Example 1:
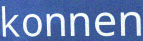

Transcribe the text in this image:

konnen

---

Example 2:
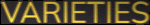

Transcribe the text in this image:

VARIETIES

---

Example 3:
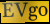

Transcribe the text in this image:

EVgo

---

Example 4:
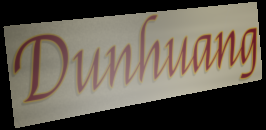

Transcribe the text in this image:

Dunhuang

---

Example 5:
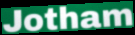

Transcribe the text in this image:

Jotham